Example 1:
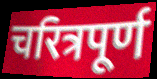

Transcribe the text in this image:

चरित्रपूर्ण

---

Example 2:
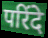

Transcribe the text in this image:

परिंदे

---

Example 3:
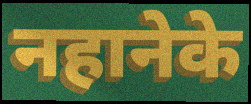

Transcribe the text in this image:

नहानेके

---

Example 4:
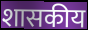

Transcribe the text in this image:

शासकीय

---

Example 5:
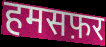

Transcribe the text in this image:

हमसफ़र